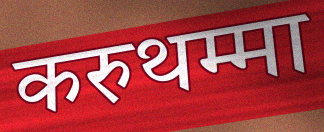
करुथम्मा